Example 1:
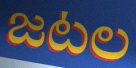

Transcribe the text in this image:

జటల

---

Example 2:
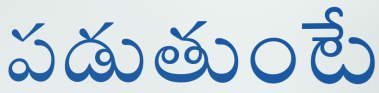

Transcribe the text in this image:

పడుతుంటే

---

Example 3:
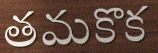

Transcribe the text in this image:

తమకొక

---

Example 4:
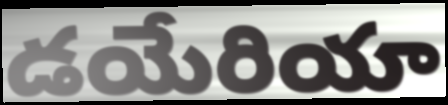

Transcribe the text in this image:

డయేరియా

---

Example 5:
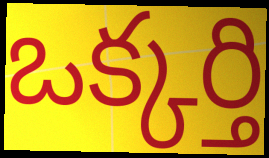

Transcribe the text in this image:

ఒక్కర్తి